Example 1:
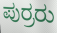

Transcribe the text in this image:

ಪುರ್ರರು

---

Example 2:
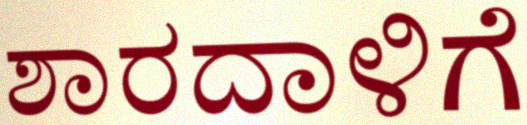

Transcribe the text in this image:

ಶಾರದಾಳಿಗೆ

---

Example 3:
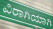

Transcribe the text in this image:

ವಿರಾಗಿಯಾಗಿ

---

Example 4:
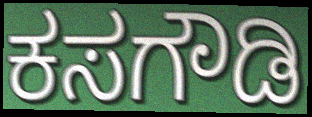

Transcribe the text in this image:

ಕಸಗೌಡಿ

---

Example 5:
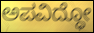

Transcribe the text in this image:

ಅಪವಿದ್ಧೋ